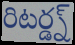
రిటర్డ్న్